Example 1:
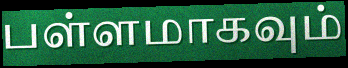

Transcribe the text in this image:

பள்ளமாகவும்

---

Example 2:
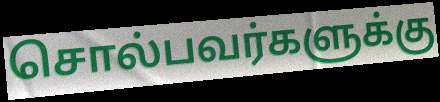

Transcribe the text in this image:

சொல்பவர்களுக்கு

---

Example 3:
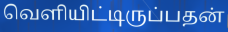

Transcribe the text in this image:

வெளியிட்டிருப்பதன்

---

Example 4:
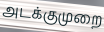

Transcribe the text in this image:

அடக்குமுறை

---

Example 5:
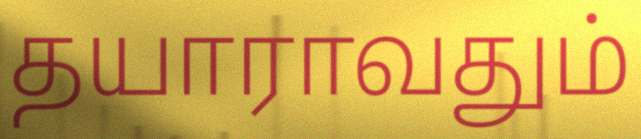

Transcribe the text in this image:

தயாராவதும்